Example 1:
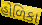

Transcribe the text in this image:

હોળિકા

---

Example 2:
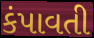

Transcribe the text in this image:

કંપાવતી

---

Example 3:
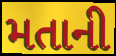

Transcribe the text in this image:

મતાની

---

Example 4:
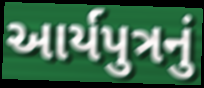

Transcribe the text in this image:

આર્યપુત્રનું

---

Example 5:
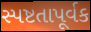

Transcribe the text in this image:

સ્પષ્ટતાપૂર્વક